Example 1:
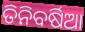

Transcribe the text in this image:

ତିନିବର୍ଷିଆ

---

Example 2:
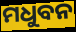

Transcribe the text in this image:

ମଧୁବନ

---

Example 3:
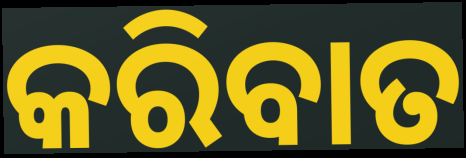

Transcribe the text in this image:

କରିବାତ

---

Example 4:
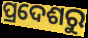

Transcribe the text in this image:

ପ୍ରଦେଶରୁ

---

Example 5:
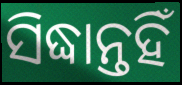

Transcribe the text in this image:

ସିଦ୍ଧାନ୍ତହିଁ